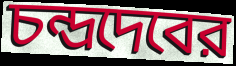
চন্দ্রদেবের